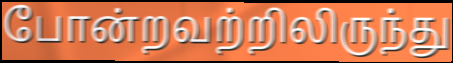
போன்றவற்றிலிருந்து